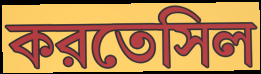
করতেসিল